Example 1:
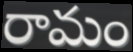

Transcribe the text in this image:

రామం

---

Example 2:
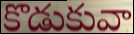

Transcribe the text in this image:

కొడుకువా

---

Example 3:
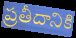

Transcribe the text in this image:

ప్రతీదానికి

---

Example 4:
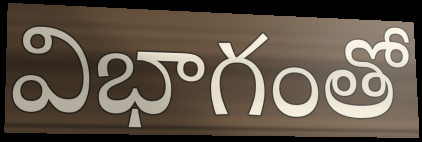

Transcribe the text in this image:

విభాగంతో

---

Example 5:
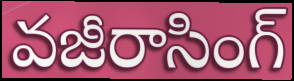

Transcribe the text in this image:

వజీరాసింగ్